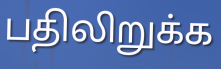
பதிலிறுக்க